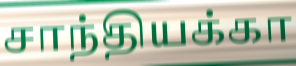
சாந்தியக்கா